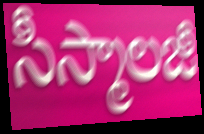
సీస్మాలజీ